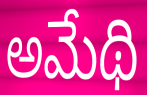
అమేథి